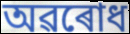
অৱৰোধ